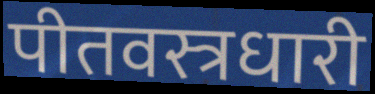
पीतवस्त्रधारी